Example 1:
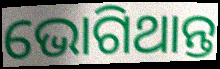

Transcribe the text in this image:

ଭୋଗିଥାନ୍ତ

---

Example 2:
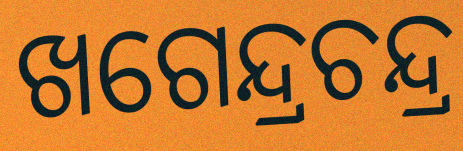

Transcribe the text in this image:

ଖଗେନ୍ଦ୍ରଚନ୍ଦ୍ର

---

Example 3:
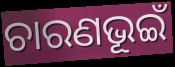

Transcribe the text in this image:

ଚାରଣଭୂଇଁ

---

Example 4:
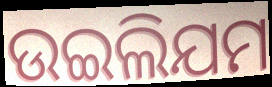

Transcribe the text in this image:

ଉଇଲିଯମ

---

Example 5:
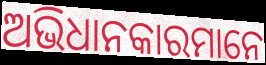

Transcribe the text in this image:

ଅଭିଧାନକାରମାନେ